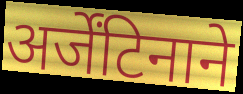
अर्जेंटिनाने